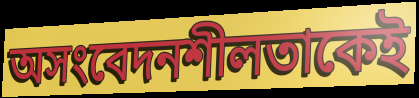
অসংবেদনশীলতাকেই